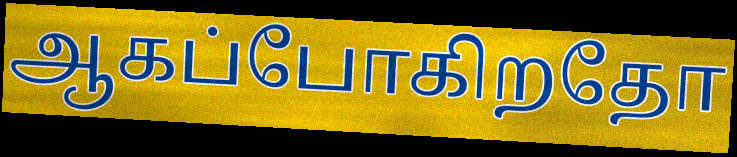
ஆகப்போகிறதோ